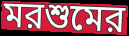
মরশুমের